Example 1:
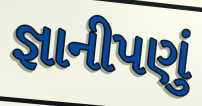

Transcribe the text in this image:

જ્ઞાનીપણું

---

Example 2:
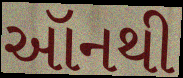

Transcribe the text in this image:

ઑનથી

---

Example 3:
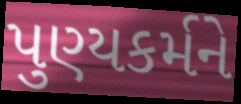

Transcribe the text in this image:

પુણ્યકર્મને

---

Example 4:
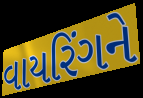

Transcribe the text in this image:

વાયરિંગને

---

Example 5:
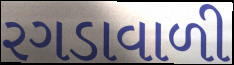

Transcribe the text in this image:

રગડાવાળી